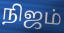
நிஜம்